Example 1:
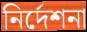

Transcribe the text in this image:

নিৰ্দেশনা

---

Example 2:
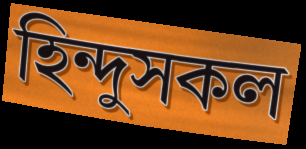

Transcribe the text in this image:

হিন্দুসকল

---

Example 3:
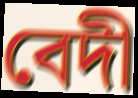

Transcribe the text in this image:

বেদী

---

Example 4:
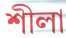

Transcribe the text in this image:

শীলা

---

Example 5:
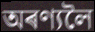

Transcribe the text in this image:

অৰণ্যলৈ